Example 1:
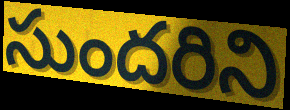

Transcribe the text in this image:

సుందరిని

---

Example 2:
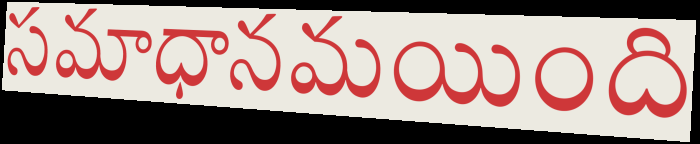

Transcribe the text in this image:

సమాధానమయింది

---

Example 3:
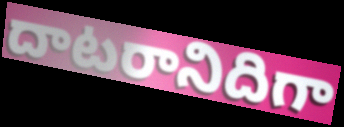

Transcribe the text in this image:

దాటరానిదిగా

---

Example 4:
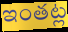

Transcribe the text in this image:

ఇంతట్ల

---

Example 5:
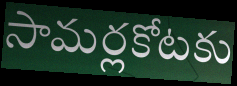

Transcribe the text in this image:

సామర్లకోటకు